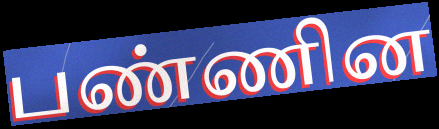
பண்ணின